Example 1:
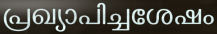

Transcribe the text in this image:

പ്രഖ്യാപിച്ചശേഷം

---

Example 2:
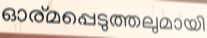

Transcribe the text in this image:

ഓര്മപ്പെടുത്തലുമായി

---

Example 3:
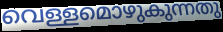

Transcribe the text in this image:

വെള്ളമൊഴുകുന്നതു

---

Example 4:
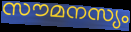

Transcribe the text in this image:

സൗമനസ്യം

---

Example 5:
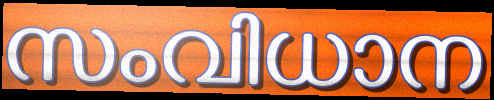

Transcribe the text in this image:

സംവിധാന